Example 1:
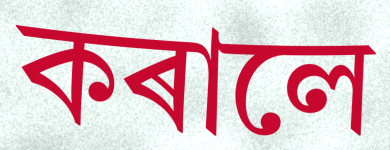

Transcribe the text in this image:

কৰালে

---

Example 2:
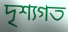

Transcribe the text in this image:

দৃশ্যগত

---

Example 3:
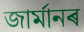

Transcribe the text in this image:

জাৰ্মানৰ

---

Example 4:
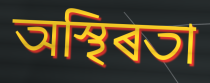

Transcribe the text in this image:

অস্থিৰতা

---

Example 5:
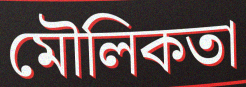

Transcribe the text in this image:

মৌলিকতা